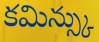
కమిన్స్కు